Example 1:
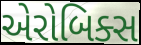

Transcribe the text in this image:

એરોબિક્સ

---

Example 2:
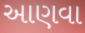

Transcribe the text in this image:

આણવા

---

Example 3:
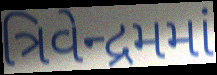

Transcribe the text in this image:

ત્રિવેન્દ્રમમાં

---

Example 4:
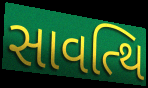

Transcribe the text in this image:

સાવત્થિ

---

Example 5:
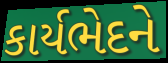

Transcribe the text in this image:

કાર્યભેદને